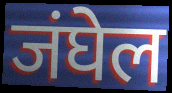
जंघेल